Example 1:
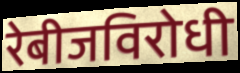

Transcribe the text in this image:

रेबीजविरोधी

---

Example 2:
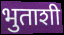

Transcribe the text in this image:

भुताशी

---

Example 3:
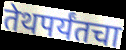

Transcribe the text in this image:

तेथपर्यंतचा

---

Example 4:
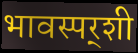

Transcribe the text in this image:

भावस्पर्शी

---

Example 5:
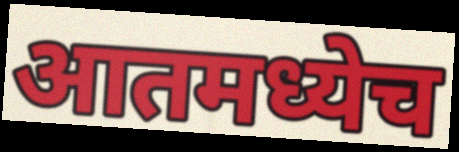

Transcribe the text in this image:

आतमध्येच